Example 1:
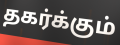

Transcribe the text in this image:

தகர்க்கும்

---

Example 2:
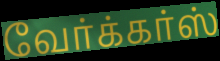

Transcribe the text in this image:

வேர்க்கர்ஸ்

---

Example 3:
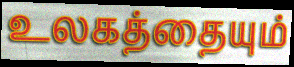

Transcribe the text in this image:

உலகத்தையும்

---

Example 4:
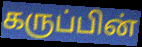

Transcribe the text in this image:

கருப்பின்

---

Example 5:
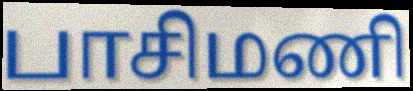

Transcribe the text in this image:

பாசிமணி